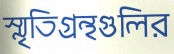
স্মৃতিগ্রন্থগুলির